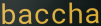
baccha